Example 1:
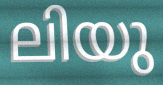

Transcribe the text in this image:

ലിയു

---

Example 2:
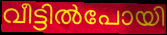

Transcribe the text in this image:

വീട്ടിൽപോയി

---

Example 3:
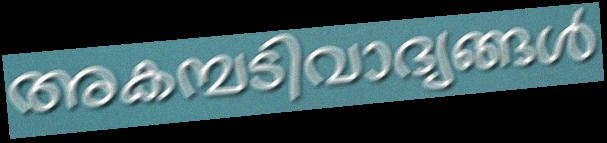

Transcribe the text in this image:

അകമ്പടിവാദ്യങ്ങൾ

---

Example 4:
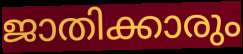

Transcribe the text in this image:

ജാതിക്കാരും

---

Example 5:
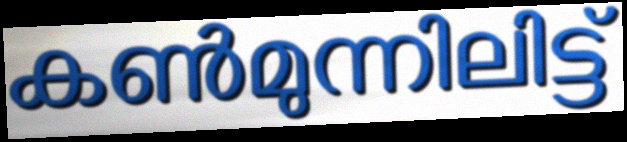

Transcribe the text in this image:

കൺമുന്നിലിട്ട്